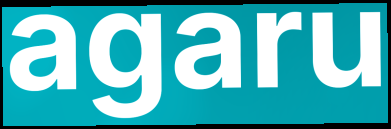
agaru